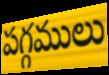
పగ్గములు